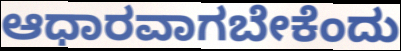
ಆಧಾರವಾಗಬೇಕೆಂದು